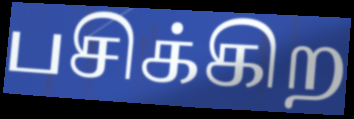
பசிக்கிற